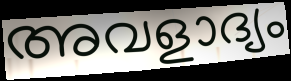
അവളാദ്യം